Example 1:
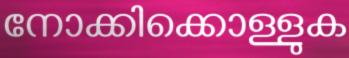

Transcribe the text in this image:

നോക്കിക്കൊള്ളുക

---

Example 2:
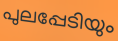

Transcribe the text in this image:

പുലപ്പേടിയും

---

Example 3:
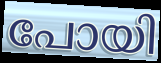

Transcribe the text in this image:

പോയി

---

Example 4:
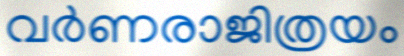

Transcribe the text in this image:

വർണരാജിത്രയം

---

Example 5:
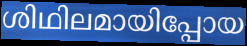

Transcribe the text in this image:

ശിഥിലമായിപ്പോയ